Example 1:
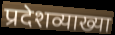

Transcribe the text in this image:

प्रदेशव्याख्या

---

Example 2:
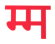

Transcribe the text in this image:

म्म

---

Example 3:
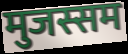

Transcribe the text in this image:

मुजस्सम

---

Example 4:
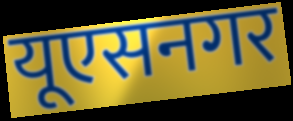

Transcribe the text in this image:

यूएसनगर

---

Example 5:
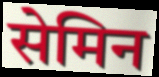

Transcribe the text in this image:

सेमिन